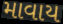
માવાય